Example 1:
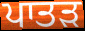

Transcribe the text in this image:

ਪਾਤੜ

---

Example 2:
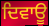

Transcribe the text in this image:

ਦਿਵਾਊ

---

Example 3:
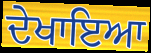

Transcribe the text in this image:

ਦੇਖਾਇਆ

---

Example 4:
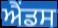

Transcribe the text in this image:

ਐਂਡਸ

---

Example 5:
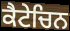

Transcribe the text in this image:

ਕੈਟੇਚਿਨ